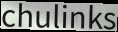
chulinks